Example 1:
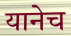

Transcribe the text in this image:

यानेच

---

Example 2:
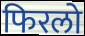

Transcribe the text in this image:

फिरलो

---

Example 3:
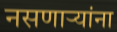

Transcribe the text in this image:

नसणाऱ्यांना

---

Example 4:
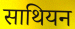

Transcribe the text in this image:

साथियन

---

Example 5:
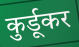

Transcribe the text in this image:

कुर्डूकर